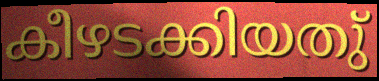
കീഴടക്കിയതു്